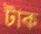
টাক